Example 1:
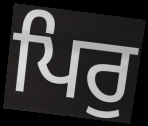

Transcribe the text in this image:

ਪਿਰੁ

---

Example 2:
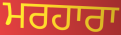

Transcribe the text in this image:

ਮਰਹਾਰਾ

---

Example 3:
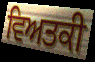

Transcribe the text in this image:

ਵਿਅਤਕੀ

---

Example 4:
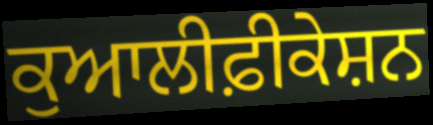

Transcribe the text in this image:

ਕੁਆਲੀਫ਼ੀਕੇਸ਼ਨ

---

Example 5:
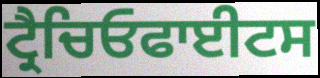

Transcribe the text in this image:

ਟ੍ਰੈਚਿਓਫਾਈਟਸ